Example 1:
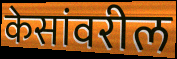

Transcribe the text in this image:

केसांवरील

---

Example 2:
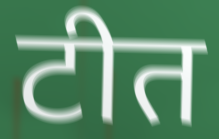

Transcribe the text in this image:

टीत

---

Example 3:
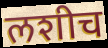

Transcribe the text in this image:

लशीच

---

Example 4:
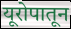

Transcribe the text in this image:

यूरोपातून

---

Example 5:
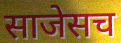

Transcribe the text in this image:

साजेसच